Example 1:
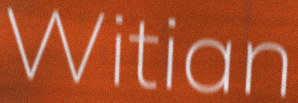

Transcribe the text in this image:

Witian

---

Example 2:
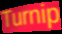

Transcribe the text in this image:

Turnip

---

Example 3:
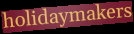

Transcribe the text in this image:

holidaymakers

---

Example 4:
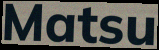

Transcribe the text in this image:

Matsu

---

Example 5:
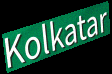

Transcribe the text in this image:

Kolkatar